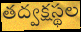
తద్వక్షస్థల